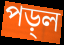
পড়্ল